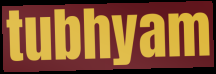
tubhyam